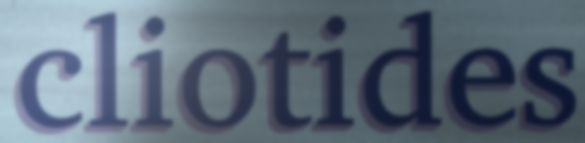
cliotides